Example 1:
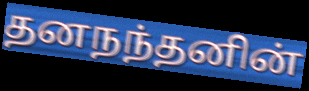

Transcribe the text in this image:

தனநந்தனின்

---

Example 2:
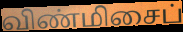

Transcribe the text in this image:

விண்மிசைப்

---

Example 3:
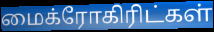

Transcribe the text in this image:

மைக்ரோகிரிட்கள்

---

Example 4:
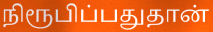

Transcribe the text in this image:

நிரூபிப்பதுதான்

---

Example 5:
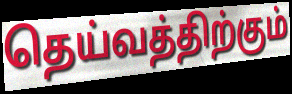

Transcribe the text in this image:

தெய்வத்திற்கும்